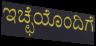
ಇಚ್ಛೆಯೊಂದಿಗೆ